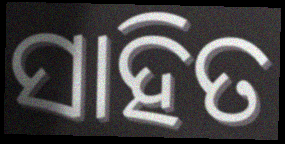
ସାହିତ